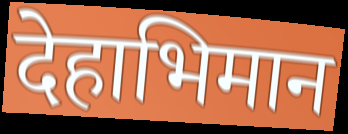
देहाभिमान